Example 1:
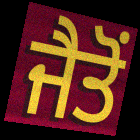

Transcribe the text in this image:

ਜੈਤੋਂ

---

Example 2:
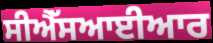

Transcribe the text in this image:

ਸੀਐੱਸਆਈਆਰ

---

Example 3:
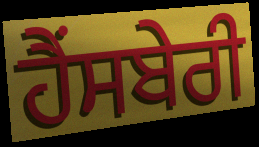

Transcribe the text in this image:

ਹੈਂਸਬੇਰੀ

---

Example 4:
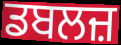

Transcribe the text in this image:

ਡਬਲਜ਼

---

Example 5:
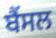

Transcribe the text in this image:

ਬੈਂਸਲ